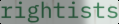
rightists